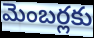
మెంబర్లకు